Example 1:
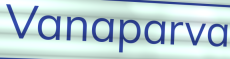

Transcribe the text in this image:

Vanaparva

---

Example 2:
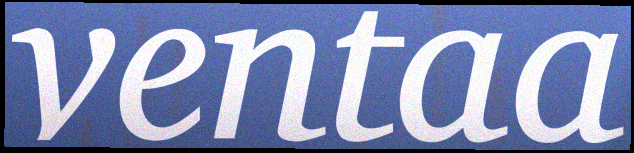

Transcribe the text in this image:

ventaa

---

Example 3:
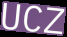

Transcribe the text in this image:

UCZ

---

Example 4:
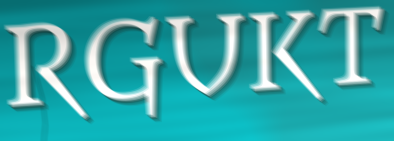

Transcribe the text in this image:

RGUKT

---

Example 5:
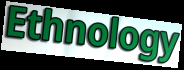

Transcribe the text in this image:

Ethnology